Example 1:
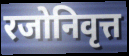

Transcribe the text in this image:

रजोनिवृत्त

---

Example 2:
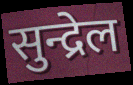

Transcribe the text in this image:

सुन्द्रेल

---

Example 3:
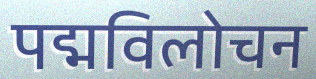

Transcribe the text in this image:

पद्मविलोचन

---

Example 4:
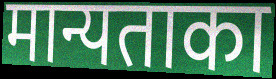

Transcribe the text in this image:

मान्यताका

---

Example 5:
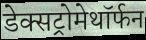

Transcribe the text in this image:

डेक्सट्रोमेथॉर्फन